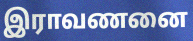
இராவணனை